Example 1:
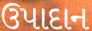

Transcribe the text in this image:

ઉપાદાન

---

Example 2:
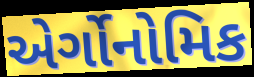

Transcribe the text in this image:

એર્ગોનોમિક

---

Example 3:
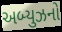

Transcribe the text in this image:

અબ્યુઝનો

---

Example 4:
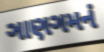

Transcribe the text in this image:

ઞાણગમનં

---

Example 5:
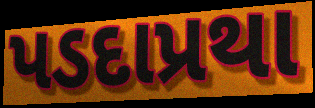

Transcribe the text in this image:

પડદાપ્રથા